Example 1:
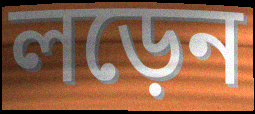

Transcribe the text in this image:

লড়েন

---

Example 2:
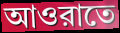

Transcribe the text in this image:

আওরাতে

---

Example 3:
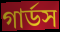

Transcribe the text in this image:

গার্ডস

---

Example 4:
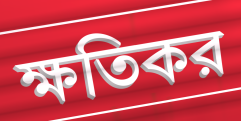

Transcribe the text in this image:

ক্ষতিকর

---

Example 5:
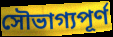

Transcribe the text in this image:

সৌভাগ্যপূর্ণ